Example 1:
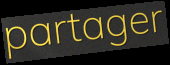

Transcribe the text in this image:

partager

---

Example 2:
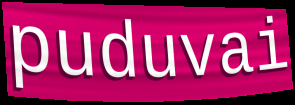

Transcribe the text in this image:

puduvai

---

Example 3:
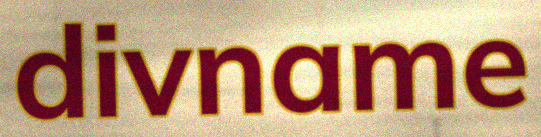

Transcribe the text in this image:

divname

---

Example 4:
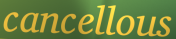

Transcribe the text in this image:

cancellous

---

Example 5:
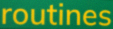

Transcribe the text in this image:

routines